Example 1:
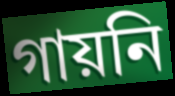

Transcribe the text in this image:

গায়নি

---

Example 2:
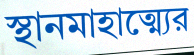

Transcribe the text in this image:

স্থানমাহাত্ম্যের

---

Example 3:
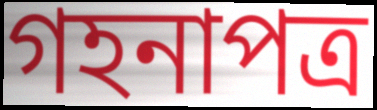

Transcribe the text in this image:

গহনাপত্র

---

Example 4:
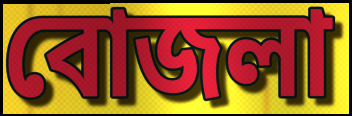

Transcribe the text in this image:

বোজলা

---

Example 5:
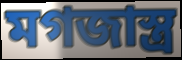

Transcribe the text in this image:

মগজাস্ত্র